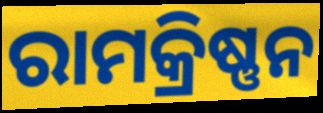
ରାମକ୍ରିଷ୍ଣନ